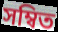
সম্বিত